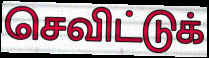
செவிட்டுக்